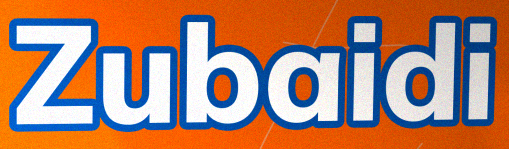
Zubaidi